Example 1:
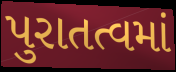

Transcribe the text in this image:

પુરાતત્વમાં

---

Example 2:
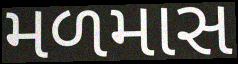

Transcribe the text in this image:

મળમાસ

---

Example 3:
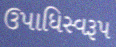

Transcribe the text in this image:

ઉપાધિસ્વરૂપ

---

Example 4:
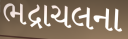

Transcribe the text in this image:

ભદ્રાચલના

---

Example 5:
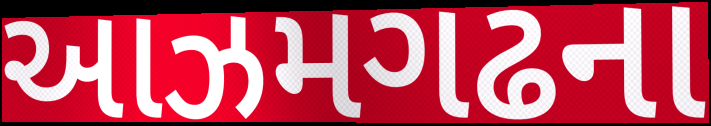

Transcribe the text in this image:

આઝમગઢના